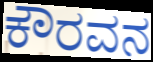
ಕೌರವನ